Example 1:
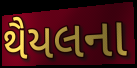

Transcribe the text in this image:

થૈયલના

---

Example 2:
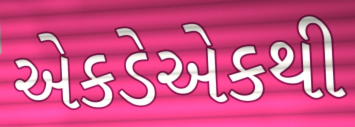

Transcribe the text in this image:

એકડેએકથી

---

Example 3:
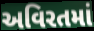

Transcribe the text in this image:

અવિરતમાં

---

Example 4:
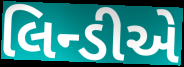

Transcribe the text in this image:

લિન્ડીએ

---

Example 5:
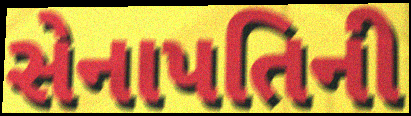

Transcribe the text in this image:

સેનાપતિની